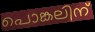
പൊങ്കലിന്